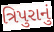
ત્રિપુરાનું